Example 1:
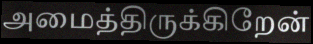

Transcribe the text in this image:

அமைத்திருக்கிறேன்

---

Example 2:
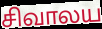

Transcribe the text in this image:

சிவாலய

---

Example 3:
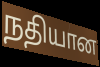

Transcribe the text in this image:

நதியான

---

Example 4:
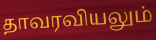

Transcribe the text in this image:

தாவரவியலும்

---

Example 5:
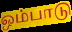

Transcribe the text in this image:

ஒம்பாடு